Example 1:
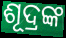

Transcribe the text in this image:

ଶୂଦ୍ରଙ୍କ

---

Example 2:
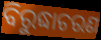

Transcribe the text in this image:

ବିରୁଦ୍ଧାଚରଣ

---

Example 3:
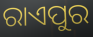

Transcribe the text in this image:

ରାଏପୁର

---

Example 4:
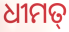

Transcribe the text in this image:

ଧୀମତ୍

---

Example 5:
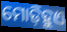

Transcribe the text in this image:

ମୋଡ଼ିହୁଏ